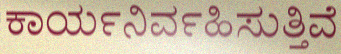
ಕಾರ್ಯನಿರ್ವಹಿಸುತ್ತಿವೆ